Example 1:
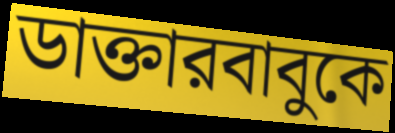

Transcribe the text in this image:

ডাক্তারবাবুকে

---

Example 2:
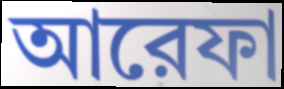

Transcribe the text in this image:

আরেফা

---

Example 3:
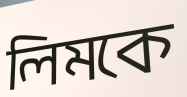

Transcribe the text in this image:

লিমকে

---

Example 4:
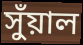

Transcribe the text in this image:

সুঁয়াল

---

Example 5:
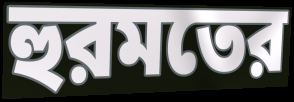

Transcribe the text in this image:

হুরমতের